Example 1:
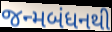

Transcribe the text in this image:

જન્મબંધનથી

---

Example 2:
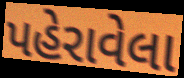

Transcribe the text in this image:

પહેરાવેલા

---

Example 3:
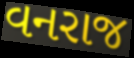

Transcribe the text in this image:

વનરાજ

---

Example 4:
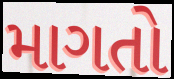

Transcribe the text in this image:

માગતો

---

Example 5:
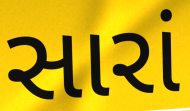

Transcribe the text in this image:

સારાં